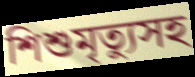
শিশুমৃত্যুসহ